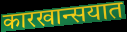
कारखान्सयात